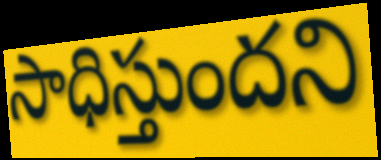
సాధిస్తుందని